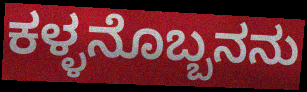
ಕಳ್ಳನೊಬ್ಬನನು